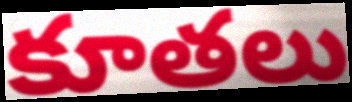
కూతలు